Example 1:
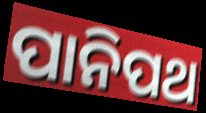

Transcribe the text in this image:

ପାନିପଥ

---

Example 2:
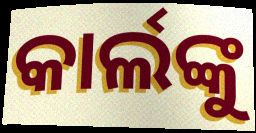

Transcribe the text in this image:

କାର୍ଲଙ୍କୁ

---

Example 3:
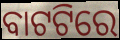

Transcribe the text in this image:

ବାଟଟିରେ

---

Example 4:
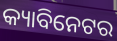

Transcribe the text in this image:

କ୍ୟାବିନେଟର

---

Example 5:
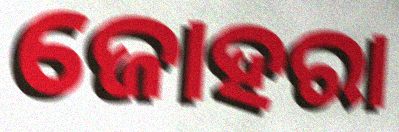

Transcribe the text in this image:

ଜୋହରା